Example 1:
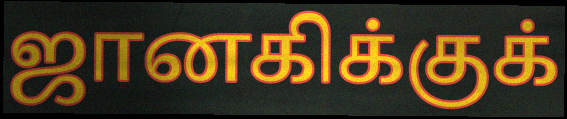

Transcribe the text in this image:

ஜானகிக்குக்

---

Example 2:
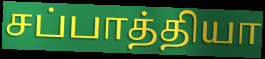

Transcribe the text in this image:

சப்பாத்தியா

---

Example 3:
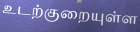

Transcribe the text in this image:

உடற்குறையுள்ள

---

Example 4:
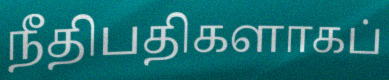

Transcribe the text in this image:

நீதிபதிகளாகப்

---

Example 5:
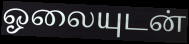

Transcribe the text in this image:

ஓலையுடன்